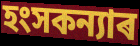
হংসকন্যাৰ